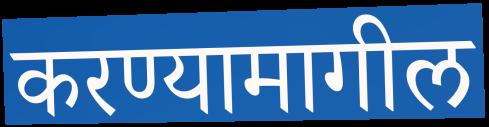
करण्यामागील